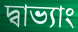
দ্বাভ্যাং